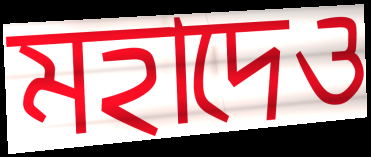
মহাদেও